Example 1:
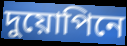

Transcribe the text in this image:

দুয়োপিনে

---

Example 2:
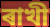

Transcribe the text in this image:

ৰাখী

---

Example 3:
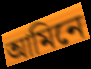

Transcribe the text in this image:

আমিনে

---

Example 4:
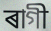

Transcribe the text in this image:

ৰাগী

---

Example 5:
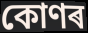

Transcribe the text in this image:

কোণৰ